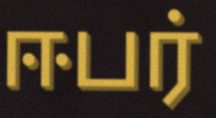
ஈபர்